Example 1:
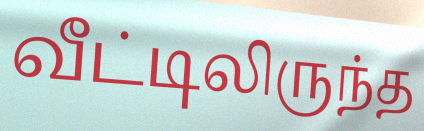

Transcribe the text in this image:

வீட்டிலிருந்த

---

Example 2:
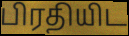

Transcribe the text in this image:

பிரதியிட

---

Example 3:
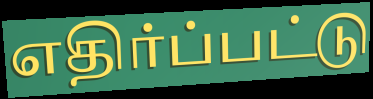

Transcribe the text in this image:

எதிர்ப்பட்டு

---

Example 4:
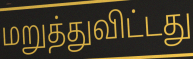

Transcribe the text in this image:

மறுத்துவிட்டது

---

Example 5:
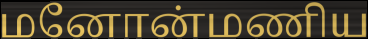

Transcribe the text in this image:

மனோன்மணிய